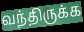
வந்திருக்க